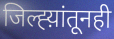
जिल्ह्य़ांतूनही